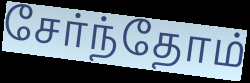
சேர்ந்தோம்